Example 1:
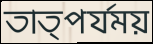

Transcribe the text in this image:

তাত্পর্যময়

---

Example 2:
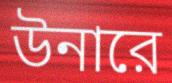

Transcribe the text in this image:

উনারে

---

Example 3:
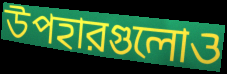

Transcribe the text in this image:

উপহারগুলোও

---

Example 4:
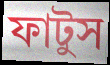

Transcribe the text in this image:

ফাটুস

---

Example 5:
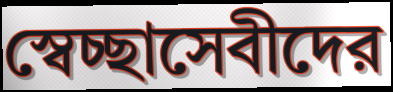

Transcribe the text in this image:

স্বেচ্ছাসেবীদের